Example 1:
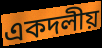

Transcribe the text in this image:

একদলীয়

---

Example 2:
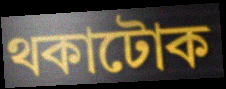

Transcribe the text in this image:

থকাটোক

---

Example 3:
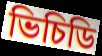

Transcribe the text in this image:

ভিচিডি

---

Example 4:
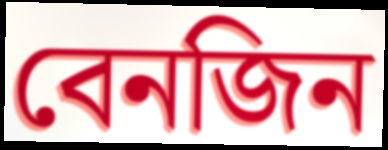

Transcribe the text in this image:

বেনজিন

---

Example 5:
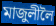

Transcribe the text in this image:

মাজুলীলৈ